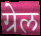
ग्रेल